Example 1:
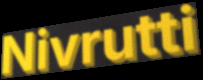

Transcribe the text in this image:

Nivrutti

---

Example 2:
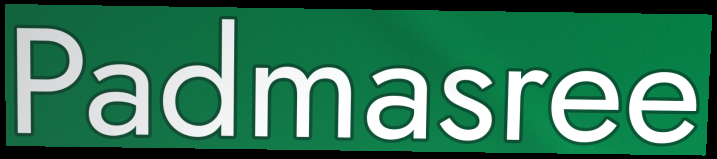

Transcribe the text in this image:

Padmasree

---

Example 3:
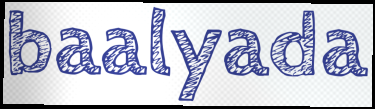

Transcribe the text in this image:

baalyada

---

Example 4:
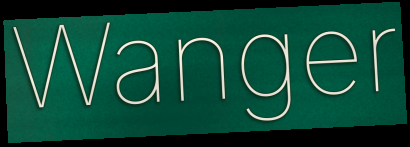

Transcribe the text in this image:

Wanger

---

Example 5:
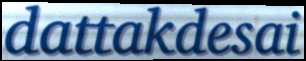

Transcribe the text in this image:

dattakdesai